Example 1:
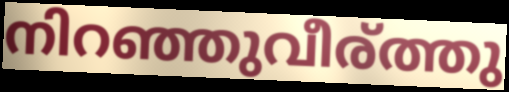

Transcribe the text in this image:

നിറഞ്ഞുവീര്ത്തു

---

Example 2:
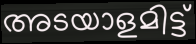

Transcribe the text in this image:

അടയാളമിട്ട്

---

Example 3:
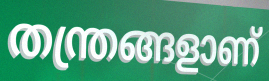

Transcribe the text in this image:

തന്ത്രങ്ങളാണ്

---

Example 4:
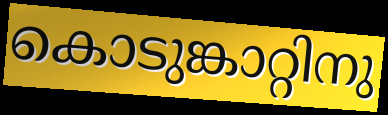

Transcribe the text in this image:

കൊടുങ്കാറ്റിനു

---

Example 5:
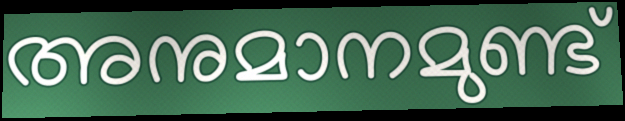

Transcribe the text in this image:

അനുമാനമുണ്ട്